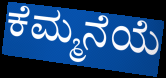
ಕೆಮ್ಮನೆಯೆ